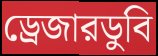
ড্রেজারডুবি